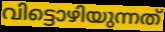
വിട്ടൊഴിയുന്നത്